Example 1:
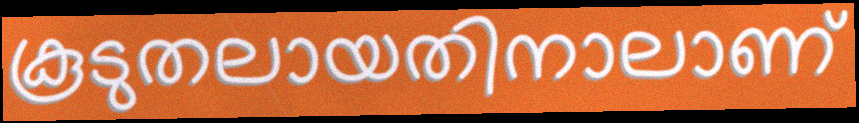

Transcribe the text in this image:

കൂടുതലായതിനാലാണ്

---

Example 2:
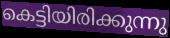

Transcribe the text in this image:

കെട്ടിയിരിക്കുന്നു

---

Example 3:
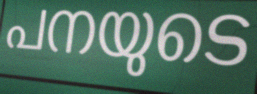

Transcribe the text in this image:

പനയുടെ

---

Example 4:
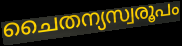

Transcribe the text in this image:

ചൈതന്യസ്വരൂപം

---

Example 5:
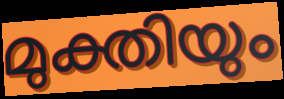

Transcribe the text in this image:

മുക്തിയും